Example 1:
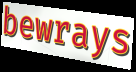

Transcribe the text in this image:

bewrays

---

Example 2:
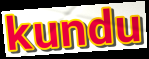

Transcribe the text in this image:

kundu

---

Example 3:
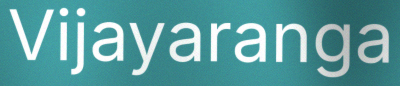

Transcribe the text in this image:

Vijayaranga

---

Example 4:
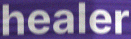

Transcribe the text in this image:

healer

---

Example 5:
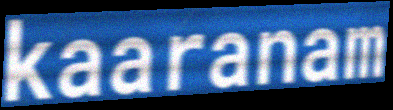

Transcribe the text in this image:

kaaranam